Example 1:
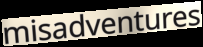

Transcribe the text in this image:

misadventures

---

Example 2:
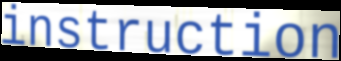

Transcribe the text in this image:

instruction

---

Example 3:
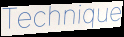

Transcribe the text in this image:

Technique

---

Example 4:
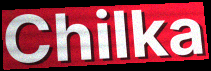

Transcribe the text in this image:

Chilka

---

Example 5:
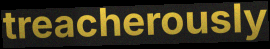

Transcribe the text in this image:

treacherously